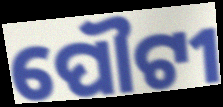
ପୌଟୀ